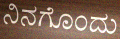
ನಿನಗೊಂದು